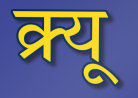
क्र्यू